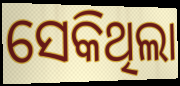
ସେକିଥିଲା